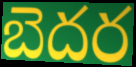
బెదర